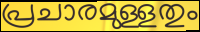
പ്രചാരമുള്ളതും